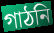
গাঠনি